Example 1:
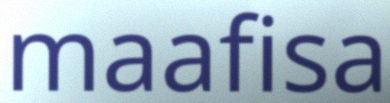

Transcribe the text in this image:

maafisa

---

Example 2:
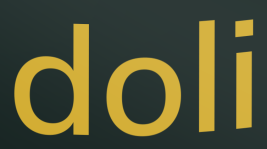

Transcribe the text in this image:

doli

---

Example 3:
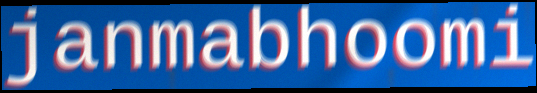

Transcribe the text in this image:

janmabhoomi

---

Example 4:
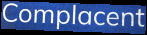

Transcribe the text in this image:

Complacent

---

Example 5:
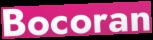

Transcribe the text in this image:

Bocoran